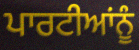
ਪਾਰਟੀਆਂਨੂੰ